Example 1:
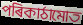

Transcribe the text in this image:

পৰিকাঠামোত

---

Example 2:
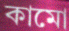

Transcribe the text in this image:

কামো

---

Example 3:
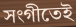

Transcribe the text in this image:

সংগীতেই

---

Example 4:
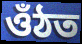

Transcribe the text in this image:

ওঁঠত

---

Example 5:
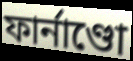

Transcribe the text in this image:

ফাৰ্নাণ্ডো